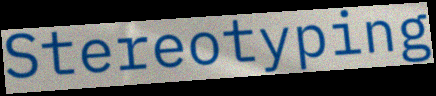
Stereotyping